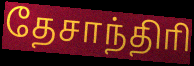
தேசாந்திரி